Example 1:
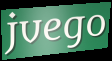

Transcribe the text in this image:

juego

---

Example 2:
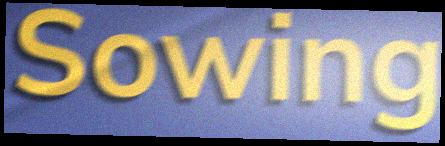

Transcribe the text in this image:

Sowing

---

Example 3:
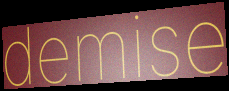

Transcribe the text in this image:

demise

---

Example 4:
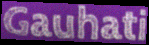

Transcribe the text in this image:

Gauhati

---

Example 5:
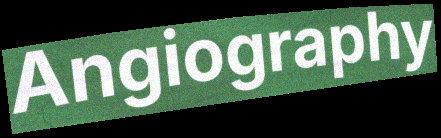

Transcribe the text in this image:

Angiography